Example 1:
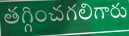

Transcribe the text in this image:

తగ్గించగలిగారు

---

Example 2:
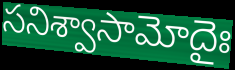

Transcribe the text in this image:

సనిశ్వాసామోదైః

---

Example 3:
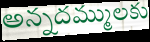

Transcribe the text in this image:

అన్నదమ్ములకు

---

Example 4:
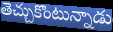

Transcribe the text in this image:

తెచ్చుకొంటున్నాడు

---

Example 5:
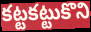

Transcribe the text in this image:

కట్టకట్టుకొని